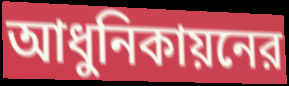
আধুনিকায়নের